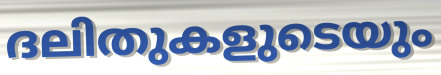
ദലിതുകളുടെയും